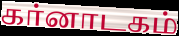
கர்னாடகம்